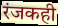
रंजकही